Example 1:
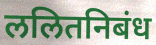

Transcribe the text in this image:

ललितनिबंध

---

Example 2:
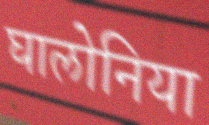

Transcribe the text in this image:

घालोनिया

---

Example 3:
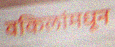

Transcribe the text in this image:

वकिलांमधून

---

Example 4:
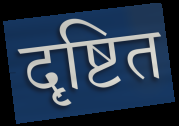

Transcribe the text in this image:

दृष्टित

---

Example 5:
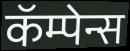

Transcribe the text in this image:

कॅम्पेन्स